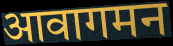
आवागमन